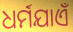
ଧର୍ମଯାଏଁ